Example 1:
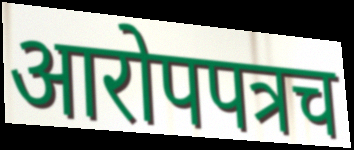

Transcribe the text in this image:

आरोपपत्रच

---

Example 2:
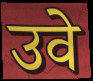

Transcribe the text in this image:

उवे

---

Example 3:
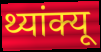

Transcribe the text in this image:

थ्यांक्यू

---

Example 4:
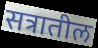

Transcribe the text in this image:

सत्रातील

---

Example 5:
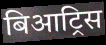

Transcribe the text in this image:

बिआट्रिस